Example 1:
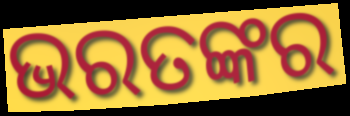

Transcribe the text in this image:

ଭରତଙ୍କର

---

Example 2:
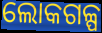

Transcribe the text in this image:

ଲୋକଗଳ୍ପ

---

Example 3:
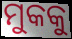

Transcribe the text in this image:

ମୁକକୁ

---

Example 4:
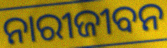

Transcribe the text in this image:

ନାରୀଜୀବନ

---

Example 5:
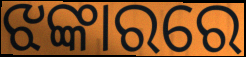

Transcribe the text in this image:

ଝଙ୍କାରରେ